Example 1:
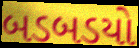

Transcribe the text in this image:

બડબડયો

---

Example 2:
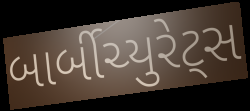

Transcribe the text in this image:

બાર્બીચ્યુરેટ્સ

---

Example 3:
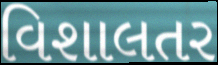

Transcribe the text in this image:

વિશાલતર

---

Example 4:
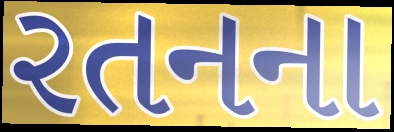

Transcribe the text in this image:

રતનના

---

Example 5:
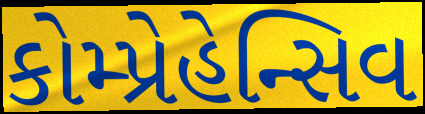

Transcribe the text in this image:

કોમ્પ્રેહેન્સિવ